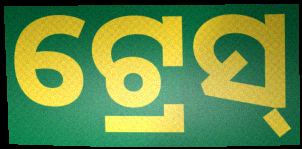
ଟ୍ରେସ୍